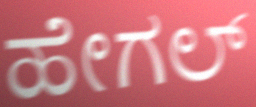
ಹೇಗಲ್